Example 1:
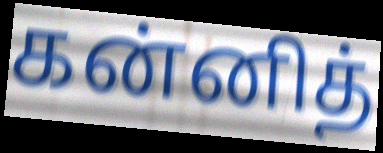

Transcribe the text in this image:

கன்னித்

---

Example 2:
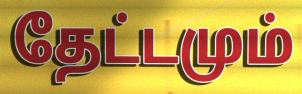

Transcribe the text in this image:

தேட்டமும்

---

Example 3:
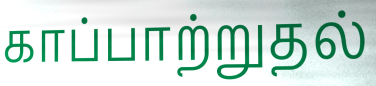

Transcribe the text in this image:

காப்பாற்றுதல்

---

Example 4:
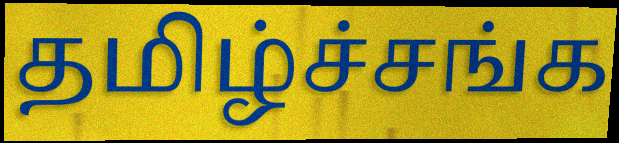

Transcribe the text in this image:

தமிழ்ச்சங்க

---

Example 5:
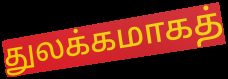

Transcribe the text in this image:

துலக்கமாகத்